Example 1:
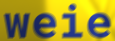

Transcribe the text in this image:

weie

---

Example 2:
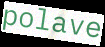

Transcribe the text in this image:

polave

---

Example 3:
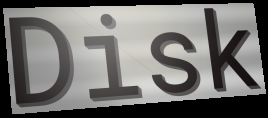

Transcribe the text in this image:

Disk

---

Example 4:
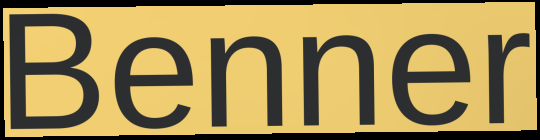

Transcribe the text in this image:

Benner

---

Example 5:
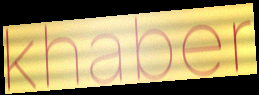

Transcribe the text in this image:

khaber